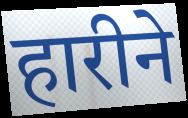
हारीने